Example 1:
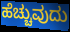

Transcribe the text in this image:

ಹೆಚ್ಚುವುದು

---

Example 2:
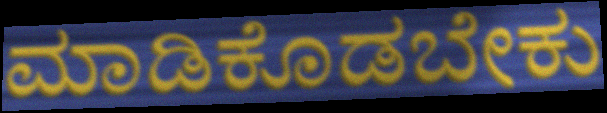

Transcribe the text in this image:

ಮಾಡಿಕೊಡಬೇಕು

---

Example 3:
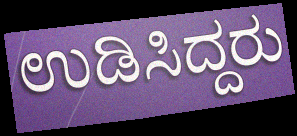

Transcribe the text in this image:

ಉಡಿಸಿದ್ದರು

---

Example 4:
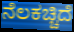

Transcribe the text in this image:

ನೆಲಕಚ್ಚಿದೆ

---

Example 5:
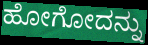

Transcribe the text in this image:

ಹೋಗೋದನ್ನು